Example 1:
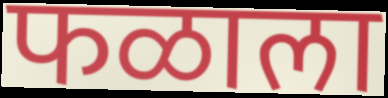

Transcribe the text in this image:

फळाला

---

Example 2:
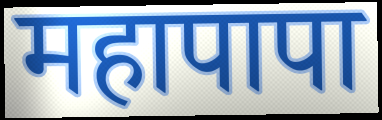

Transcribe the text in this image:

महापापा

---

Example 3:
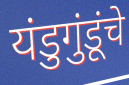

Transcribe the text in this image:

यंडुगुंडूंचे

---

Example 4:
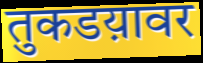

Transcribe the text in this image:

तुकडय़ावर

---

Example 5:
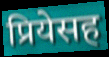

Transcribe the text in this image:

प्रियेसह